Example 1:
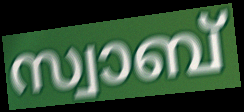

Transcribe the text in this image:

സ്വാബ്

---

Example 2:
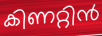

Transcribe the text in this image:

കിണറ്റിൻ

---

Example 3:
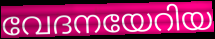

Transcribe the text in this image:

വേദനയേറിയ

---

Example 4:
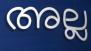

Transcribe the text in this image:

അല്ല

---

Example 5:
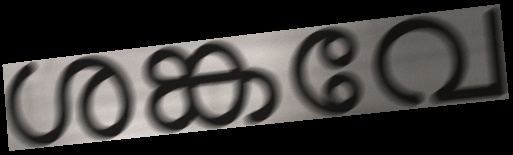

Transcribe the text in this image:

ശങ്കവേ